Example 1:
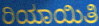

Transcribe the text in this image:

ರಿಯಾಯಿತಿ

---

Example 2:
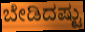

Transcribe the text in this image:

ಬೇಡಿದಷ್ಟು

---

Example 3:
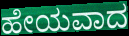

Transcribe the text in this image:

ಹೇಯವಾದ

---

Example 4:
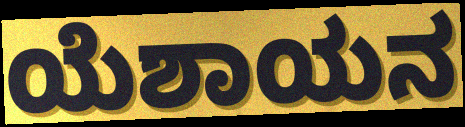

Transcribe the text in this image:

ಯೆಶಾಯನ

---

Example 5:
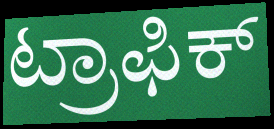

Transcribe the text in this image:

ಟ್ರಾಫಿಕ್